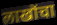
लाखोंचा